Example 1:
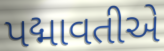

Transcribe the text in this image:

પદ્માવતીએ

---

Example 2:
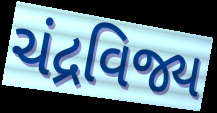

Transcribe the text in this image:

ચંદ્રવિજ્ય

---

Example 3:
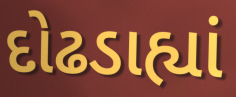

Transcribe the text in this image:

દોઢડાહ્યાં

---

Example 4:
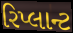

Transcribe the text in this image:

રિપ્લાન્ટ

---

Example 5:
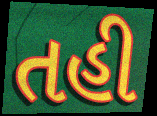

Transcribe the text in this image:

તહી